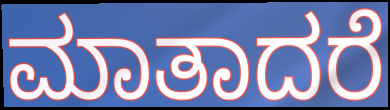
ಮಾತಾದರೆ